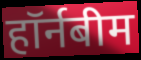
हॉर्नबीम